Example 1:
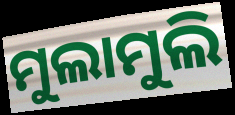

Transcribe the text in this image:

ମୁଲାମୁଲି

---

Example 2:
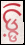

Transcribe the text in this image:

ଡ଼୍ଡି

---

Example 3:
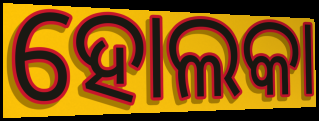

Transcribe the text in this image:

ହୋଲକା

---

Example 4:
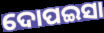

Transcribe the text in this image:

ଦୋପଇସା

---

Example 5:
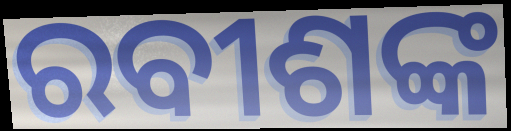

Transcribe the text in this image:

ରବୀଶଙ୍କ